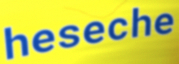
heseche